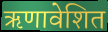
ऋणावेशित